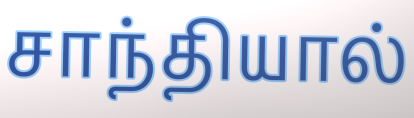
சாந்தியால்